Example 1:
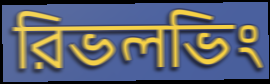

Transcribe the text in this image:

রিভলভিং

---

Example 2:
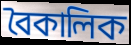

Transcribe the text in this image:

বৈকালিক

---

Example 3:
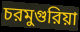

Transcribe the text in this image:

চরমুগুরিয়া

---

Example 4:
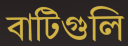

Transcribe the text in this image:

বাটিগুলি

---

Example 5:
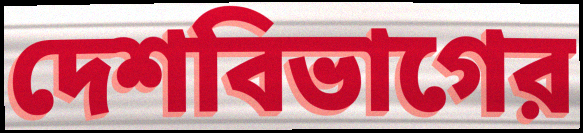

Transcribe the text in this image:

দেশবিভাগের